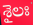
శైలః